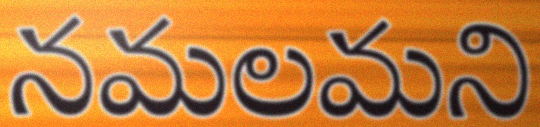
నమలమని